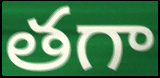
తగా